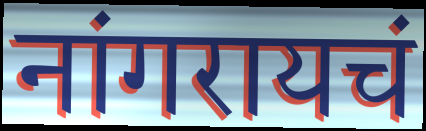
नांगरायचं